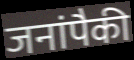
जनांपैकी